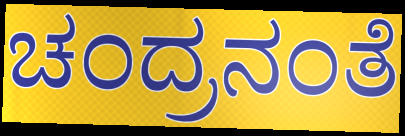
ಚಂದ್ರನಂತೆ